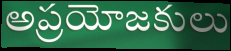
అప్రయోజకులు